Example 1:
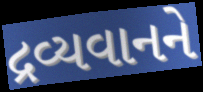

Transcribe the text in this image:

દ્રવ્યવાનને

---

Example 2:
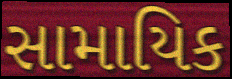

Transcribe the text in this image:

સામાયિક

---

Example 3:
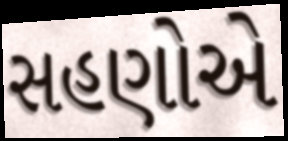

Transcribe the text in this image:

સહણોએ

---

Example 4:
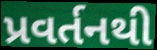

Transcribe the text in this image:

પ્રવર્તનથી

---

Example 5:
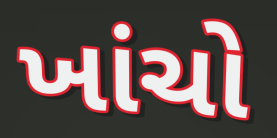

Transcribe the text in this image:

ખાંચો